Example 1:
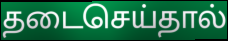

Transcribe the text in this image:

தடைசெய்தால்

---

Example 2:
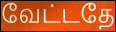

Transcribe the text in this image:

வேட்டதே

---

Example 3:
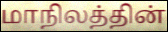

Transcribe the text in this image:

மாநிலத்தின்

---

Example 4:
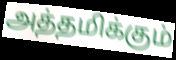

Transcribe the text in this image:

அத்தமிக்கும்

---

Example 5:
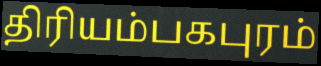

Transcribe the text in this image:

திரியம்பகபுரம்